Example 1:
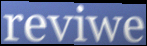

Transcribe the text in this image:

reviwe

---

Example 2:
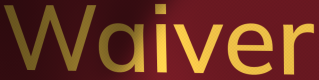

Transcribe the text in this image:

Waiver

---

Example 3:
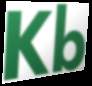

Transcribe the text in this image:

Kb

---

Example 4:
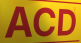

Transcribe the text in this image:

ACD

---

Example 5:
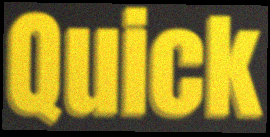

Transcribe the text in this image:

Quick